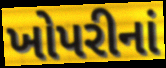
ખોપરીનાં